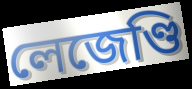
লেজেণ্ডি